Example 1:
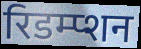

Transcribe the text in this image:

रिडम्प्शन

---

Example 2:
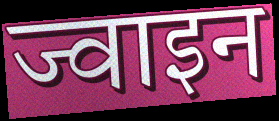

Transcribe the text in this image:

ज्वाइन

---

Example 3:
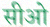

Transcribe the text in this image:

सीओ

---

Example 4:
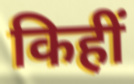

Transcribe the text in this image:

किहीं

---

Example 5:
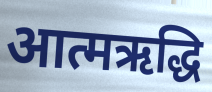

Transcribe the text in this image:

आत्मऋद्धि